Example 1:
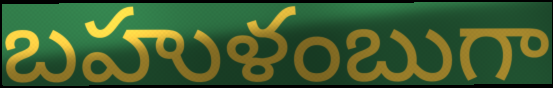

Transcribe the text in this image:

బహుళంబుగా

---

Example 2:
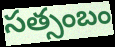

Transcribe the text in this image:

సత్సంబం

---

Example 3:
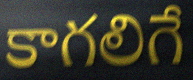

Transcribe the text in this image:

కాగలిగే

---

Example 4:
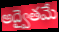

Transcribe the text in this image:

అద్వైతమే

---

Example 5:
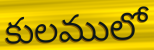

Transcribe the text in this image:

కులములో